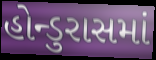
હોન્ડુરાસમાં